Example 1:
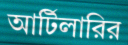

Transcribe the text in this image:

আর্টিলারির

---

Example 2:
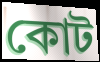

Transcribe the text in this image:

কোট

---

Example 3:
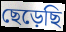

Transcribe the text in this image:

ছেড়েছি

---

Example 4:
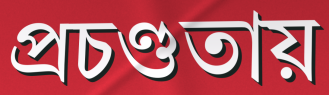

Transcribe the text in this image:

প্রচণ্ডতায়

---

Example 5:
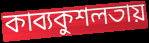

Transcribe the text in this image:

কাব্যকুশলতায়